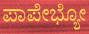
ಪಾಪೇಭ್ಯೋ